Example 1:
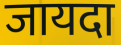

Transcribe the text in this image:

जायदा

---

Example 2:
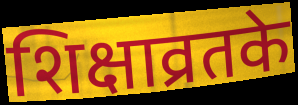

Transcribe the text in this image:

शिक्षाव्रतके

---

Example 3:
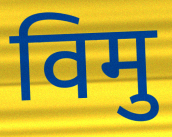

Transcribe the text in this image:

विमु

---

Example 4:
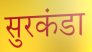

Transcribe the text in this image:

सुरकंडा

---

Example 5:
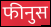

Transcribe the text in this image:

फीनुस